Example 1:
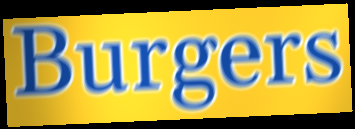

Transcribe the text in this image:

Burgers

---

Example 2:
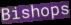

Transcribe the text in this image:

Bishops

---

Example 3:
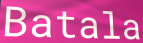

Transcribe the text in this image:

Batala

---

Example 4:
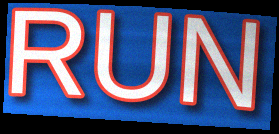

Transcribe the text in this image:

RUN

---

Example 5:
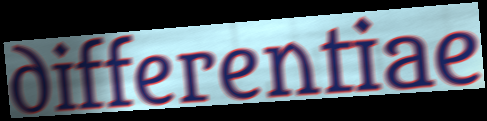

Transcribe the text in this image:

differentiae